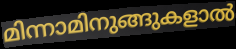
മിന്നാമിനുങ്ങുകളാൽ